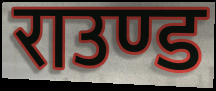
राउण्ड